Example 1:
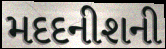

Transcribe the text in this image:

મદદનીશની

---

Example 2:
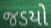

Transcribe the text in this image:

જડયો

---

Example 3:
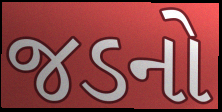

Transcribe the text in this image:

જડનો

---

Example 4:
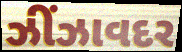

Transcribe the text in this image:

ઝીંઝાવદર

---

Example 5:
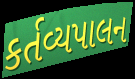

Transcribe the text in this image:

કર્તવ્યપાલન